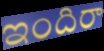
ఇందిరా